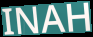
INAH